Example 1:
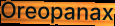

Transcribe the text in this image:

Oreopanax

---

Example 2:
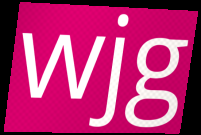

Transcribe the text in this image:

wjg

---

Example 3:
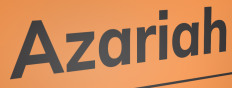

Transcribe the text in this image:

Azariah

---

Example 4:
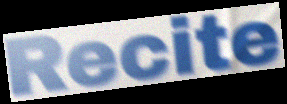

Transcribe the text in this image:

Recite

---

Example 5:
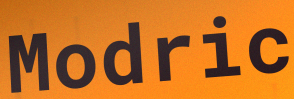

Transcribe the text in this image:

Modric